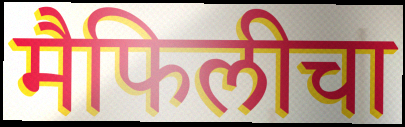
मैफिलीचा